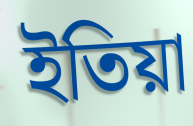
ইতিয়া